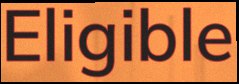
Eligible